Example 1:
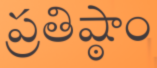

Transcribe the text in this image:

ప్రతిష్ఠాం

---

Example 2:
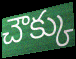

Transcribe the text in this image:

చౌక్కు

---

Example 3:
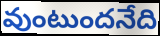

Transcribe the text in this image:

వుంటుందనేది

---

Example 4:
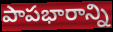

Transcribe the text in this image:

పాపభారాన్ని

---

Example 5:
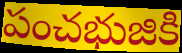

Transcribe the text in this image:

పంచభుజికి